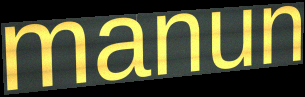
manun